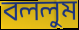
বললুম